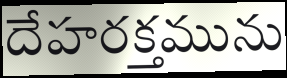
దేహరక్తమును